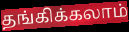
தங்கிக்கலாம்